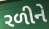
રળીને